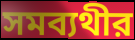
সমব্যথীর